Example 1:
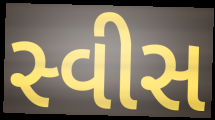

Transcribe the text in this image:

સ્વીસ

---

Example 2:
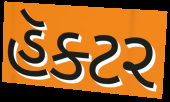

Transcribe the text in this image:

હૅક્ટર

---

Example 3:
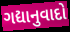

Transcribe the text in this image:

ગદ્યાનુવાદો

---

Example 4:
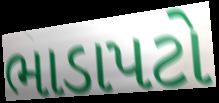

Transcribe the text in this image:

ભાડાપટો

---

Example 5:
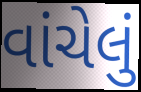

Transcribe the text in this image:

વાંચેલું